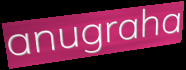
anugraha